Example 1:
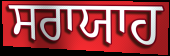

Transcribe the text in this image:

ਸਰਾਯਾਹ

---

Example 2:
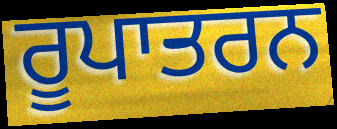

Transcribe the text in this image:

ਰੂਪਾਤਰਨ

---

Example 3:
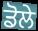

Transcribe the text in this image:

ਡੋਲੇ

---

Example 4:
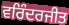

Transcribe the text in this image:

ਵਰਿੰਦਰਜੀਤ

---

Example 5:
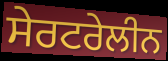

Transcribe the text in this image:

ਸੇਰਟਰੇਲੀਨ